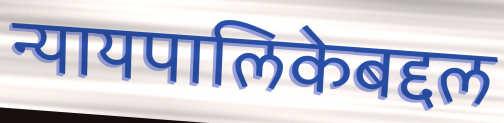
न्यायपालिकेबद्दल